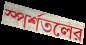
স্পর্শতলের